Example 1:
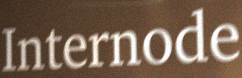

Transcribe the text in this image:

Internode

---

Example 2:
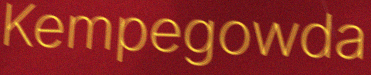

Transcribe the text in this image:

Kempegowda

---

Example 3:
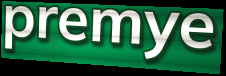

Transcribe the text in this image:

premye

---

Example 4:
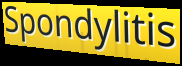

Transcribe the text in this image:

Spondylitis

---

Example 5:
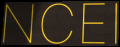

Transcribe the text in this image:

NCEI